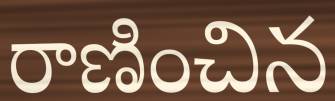
రాణించిన